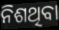
ନିଶଥିବା